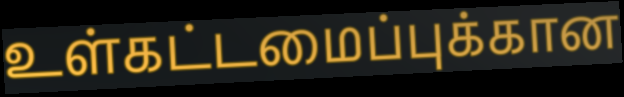
உள்கட்டமைப்புக்கான